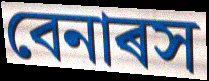
বেনাৰস